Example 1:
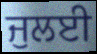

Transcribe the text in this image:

ਜੁਲਈ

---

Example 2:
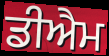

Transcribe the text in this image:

ਡੀਐਮ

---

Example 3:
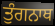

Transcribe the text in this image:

ਤੁੰਗਨਾਥ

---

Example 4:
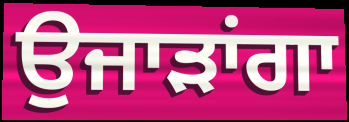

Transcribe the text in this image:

ਉਜਾੜਾਂਗਾ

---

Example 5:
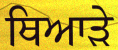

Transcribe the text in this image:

ਥਿਆੜੇ